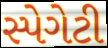
સ્પેગેટી